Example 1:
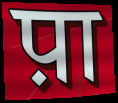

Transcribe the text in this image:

प़ा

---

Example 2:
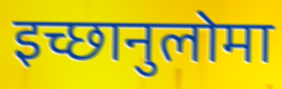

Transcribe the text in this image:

इच्छानुलोमा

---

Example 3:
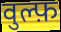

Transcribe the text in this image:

वुल्फ़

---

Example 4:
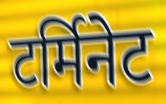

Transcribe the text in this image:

टर्मिनेट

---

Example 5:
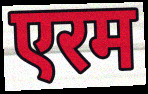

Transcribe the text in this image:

एरम